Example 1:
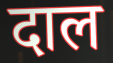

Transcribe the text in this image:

दाल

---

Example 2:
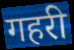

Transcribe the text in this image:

गहरी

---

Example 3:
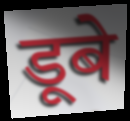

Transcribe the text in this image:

डूबे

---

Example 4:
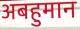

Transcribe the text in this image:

अबहुमान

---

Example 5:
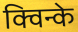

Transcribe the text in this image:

क्विन्के